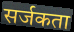
सर्जकता